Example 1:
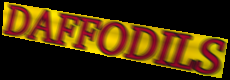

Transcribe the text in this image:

DAFFODILS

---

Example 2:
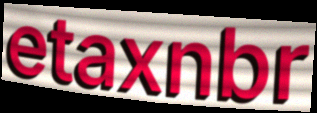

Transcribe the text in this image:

etaxnbr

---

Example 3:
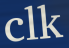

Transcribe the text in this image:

clk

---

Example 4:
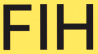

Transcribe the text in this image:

FIH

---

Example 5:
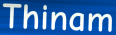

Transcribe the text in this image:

Thinam